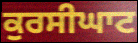
ਕੁਰਸੀਘਾਟ